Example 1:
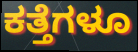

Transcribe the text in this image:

ಕತ್ತೆಗಳೂ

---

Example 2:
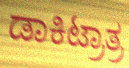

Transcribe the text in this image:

ಡಾಕಿಟ್ರಾತ್ರ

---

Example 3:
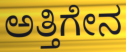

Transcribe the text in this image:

ಅತ್ತಿಗೇನ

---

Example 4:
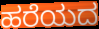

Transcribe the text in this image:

ಹರೆಯದ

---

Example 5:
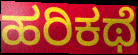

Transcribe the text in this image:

ಹರಿಕಥೆ